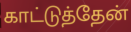
காட்டுத்தேன்